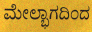
ಮೇಲ್ಭಾಗದಿಂದ